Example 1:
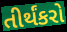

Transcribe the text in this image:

તીર્થંકરો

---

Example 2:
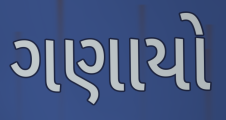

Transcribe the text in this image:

ગણાયો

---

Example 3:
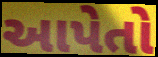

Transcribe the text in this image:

આપેતો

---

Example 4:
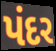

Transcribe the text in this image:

પંદર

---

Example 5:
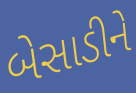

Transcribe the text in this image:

બેસાડીને